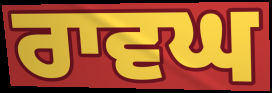
ਰਾਵਘ